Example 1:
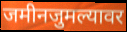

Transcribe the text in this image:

जमीनजुमल्यावर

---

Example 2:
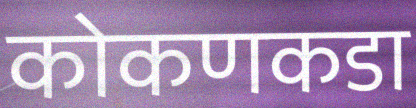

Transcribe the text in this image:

कोकणकडा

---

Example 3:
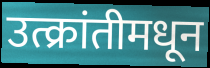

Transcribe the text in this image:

उत्क्रांतीमधून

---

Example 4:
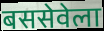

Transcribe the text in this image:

बससेवेला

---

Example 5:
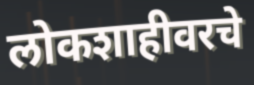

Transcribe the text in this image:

लोकशाहीवरचे